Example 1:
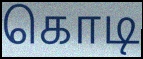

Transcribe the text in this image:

கொடி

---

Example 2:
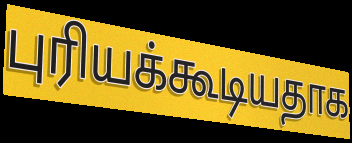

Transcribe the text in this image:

புரியக்கூடியதாக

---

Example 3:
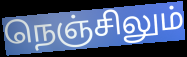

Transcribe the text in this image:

நெஞ்சிலும்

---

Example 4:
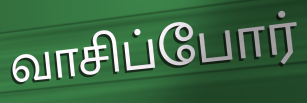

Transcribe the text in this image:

வாசிப்போர்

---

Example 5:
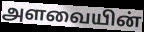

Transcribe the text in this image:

அளவையின்